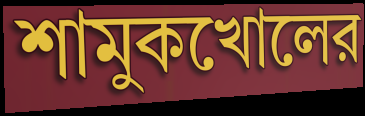
শামুকখোলের